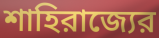
শাহিরাজ্যের